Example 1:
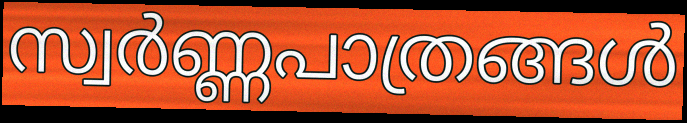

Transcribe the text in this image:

സ്വർണ്ണപാത്രങ്ങൾ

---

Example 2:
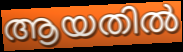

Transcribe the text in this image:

ആയതിൽ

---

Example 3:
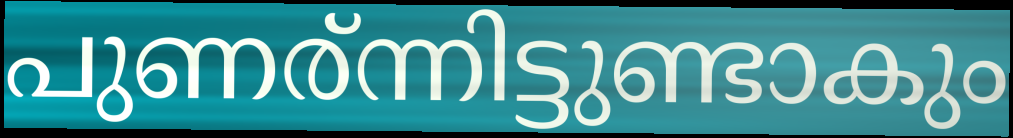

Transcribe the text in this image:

പുണര്ന്നിട്ടുണ്ടാകും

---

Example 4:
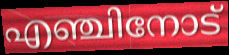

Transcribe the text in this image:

എഞ്ചിനോട്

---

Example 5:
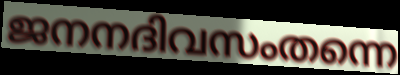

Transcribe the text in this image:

ജനനദിവസംതന്നെ